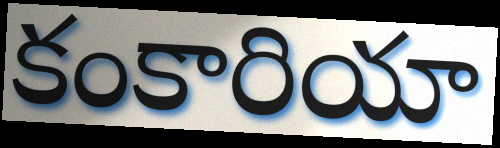
కంకారియా